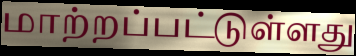
மாற்றப்பட்டுள்ளது